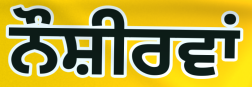
ਨੌਸ਼ੀਰਵਾਂ